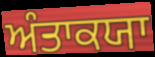
ਅੰਤਾਕਯਾ